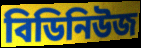
বিডিনিউজ